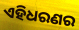
ଏହିଧରଣର